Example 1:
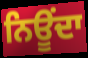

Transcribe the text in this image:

ਨਿਊਂਦਾ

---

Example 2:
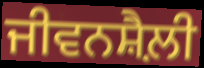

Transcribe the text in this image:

ਜੀਵਨਸ਼ੈਲ਼ੀ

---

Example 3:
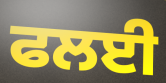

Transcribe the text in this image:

ਫਲਈ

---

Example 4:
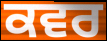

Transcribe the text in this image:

ਕਵਰ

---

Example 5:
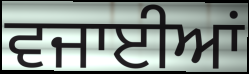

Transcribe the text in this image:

ਵਜਾਈਆਂ